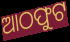
ଆଠଫୁଟ